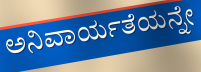
ಅನಿವಾರ್ಯತೆಯನ್ನೇ